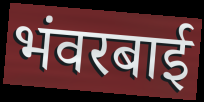
भंवरबाई